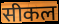
सीकल